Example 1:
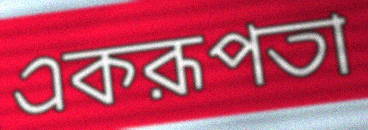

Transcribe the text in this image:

একরূপতা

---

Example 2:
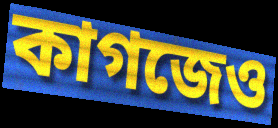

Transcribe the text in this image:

কাগজেও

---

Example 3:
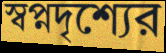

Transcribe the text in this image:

স্বপ্নদৃশ্যের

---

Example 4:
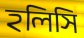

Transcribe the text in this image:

হলিসি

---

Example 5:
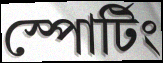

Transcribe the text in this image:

স্পোর্টিং